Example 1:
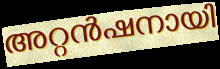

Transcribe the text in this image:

അറ്റൻഷനായി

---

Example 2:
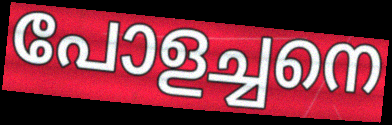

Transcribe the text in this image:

പോളച്ചനെ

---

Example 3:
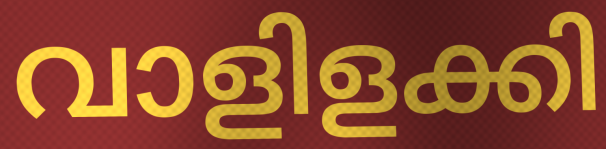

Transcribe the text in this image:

വാളിളക്കി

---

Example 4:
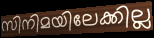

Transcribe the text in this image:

സിനിമയിലേക്കില്ല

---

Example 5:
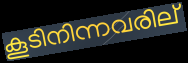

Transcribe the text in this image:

കൂടിനിന്നവരില്